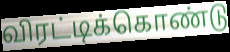
விரட்டிக்கொண்டு